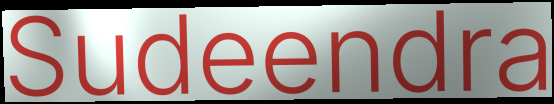
Sudeendra